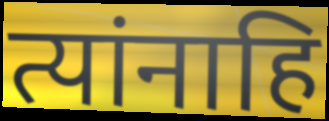
त्यांनाहि